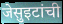
जेसुइटांची